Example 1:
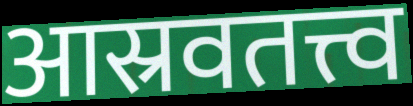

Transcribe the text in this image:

आस्रवतत्त्व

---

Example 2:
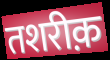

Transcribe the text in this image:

तशरीक़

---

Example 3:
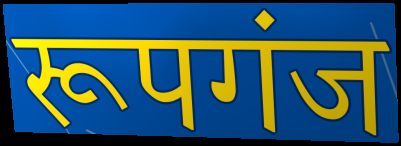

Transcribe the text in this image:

रूपगंज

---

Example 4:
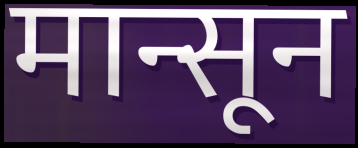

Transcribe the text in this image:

मान्सून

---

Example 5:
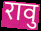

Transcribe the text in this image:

रावु